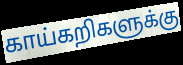
காய்கறிகளுக்கு